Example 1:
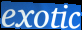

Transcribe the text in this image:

exotic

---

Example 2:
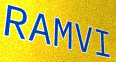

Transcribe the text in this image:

RAMVI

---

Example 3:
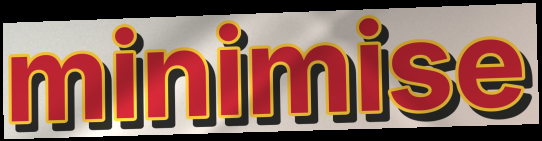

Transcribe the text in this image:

minimise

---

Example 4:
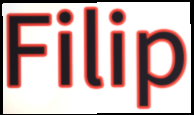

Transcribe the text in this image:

Filip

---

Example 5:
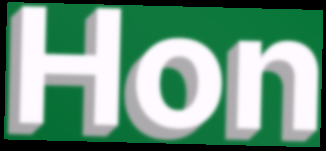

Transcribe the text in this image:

Hon